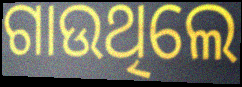
ଗାଉଥିଲେ